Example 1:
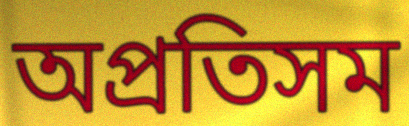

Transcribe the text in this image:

অপ্রতিসম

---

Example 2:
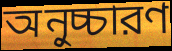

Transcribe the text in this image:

অনুচ্চারণ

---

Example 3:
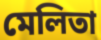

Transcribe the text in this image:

মেলিতা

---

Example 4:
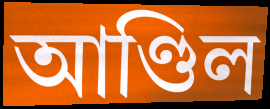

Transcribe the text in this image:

আণ্ডিল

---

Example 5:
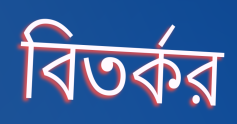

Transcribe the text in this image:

বিতর্কর